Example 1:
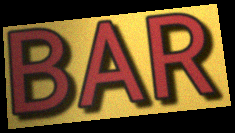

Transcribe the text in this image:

BAR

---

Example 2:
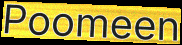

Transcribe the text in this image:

Poomeen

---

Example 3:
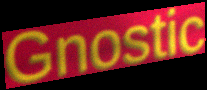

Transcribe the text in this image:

Gnostic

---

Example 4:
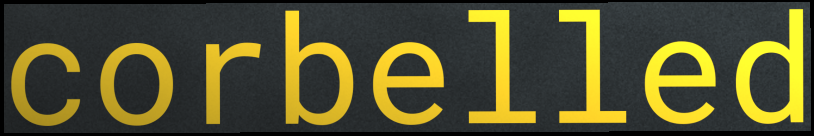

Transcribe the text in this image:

corbelled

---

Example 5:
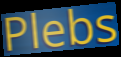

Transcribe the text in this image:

Plebs